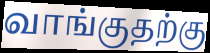
வாங்குதற்கு